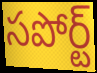
సపోర్ట్